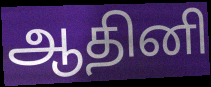
ஆதினி